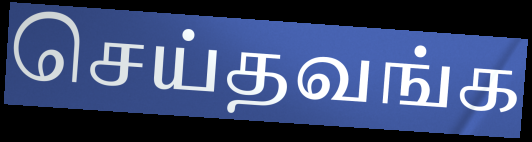
செய்தவங்க